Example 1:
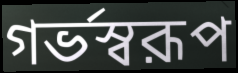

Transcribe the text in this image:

গর্ভস্বরূপ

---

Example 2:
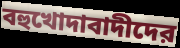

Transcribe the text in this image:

বহুখোদাবাদীদের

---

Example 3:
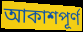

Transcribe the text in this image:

আকাশপূর্ণ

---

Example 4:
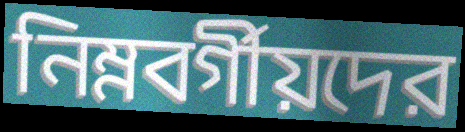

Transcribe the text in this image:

নিম্নবর্গীয়দের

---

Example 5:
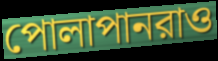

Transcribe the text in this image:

পোলাপানরাও